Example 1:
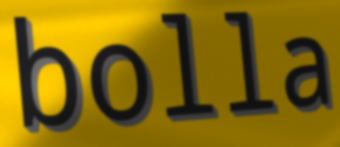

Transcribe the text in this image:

bolla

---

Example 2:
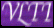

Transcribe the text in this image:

VLTI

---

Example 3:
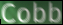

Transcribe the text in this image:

Cobb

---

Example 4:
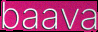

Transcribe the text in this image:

baava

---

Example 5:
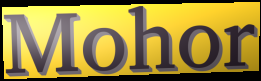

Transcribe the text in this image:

Mohor